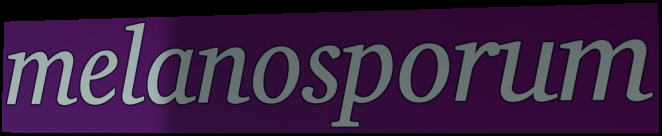
melanosporum